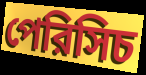
পেরিসিচ